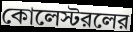
কোলেস্টরলের